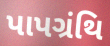
પાપગ્રંથિ